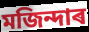
মজিন্দাৰ